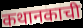
कथानकाची